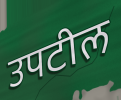
उपटील